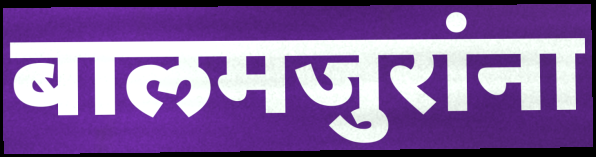
बालमजुरांना